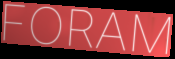
FORAM